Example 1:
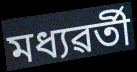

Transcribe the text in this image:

মধ্যৱৰ্তী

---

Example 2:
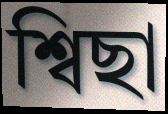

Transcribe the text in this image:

শ্বিছা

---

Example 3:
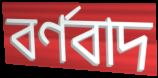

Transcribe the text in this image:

বৰ্ণবাদ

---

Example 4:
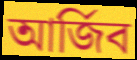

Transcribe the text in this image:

আৰ্জিব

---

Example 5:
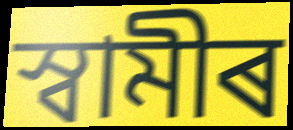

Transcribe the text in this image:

স্বামীৰ